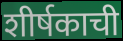
शीर्षकाची